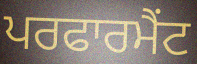
ਪਰਫਾਰਮੈਂਟ